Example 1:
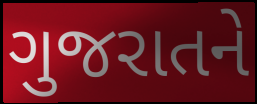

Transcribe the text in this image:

ગુજરાતને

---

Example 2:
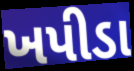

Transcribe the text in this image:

ખપીડા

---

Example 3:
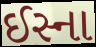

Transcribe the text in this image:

ઈસ્ના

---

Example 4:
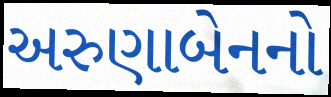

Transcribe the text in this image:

અરુણાબેનનો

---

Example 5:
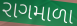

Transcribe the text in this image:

રાગમાળા